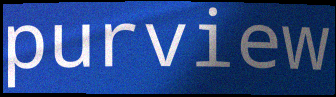
purview